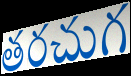
తరచుగ